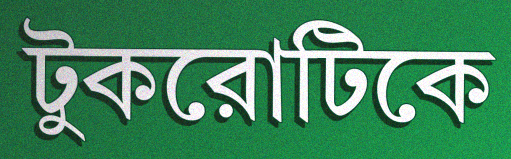
টুকরোটিকে